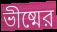
ভীষ্মের